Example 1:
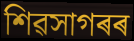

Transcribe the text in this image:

শিৱসাগৰৰ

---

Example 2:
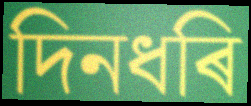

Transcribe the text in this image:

দিনধৰি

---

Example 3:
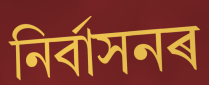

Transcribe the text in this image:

নিৰ্বাসনৰ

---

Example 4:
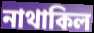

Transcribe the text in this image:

নাথাকিল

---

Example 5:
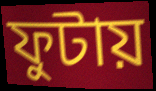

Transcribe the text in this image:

ফুটায়